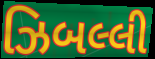
ઝિબલ્લી